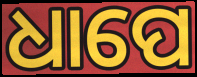
ଧାପେ